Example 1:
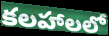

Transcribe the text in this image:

కలహాలలో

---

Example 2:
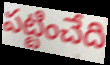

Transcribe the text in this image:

పట్టించేది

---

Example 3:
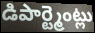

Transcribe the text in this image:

డిపార్ట్మెంట్లు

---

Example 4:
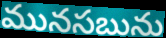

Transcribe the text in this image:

మునసబును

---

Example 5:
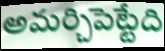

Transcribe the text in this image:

అమర్చిపెట్టేది